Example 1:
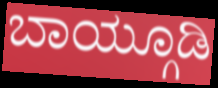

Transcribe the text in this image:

ಬಾಯ್ಗೂಡಿ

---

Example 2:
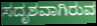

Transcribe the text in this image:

ಸದೃಶವಾಗಿರುವ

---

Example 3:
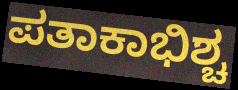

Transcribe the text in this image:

ಪತಾಕಾಭಿಶ್ಚ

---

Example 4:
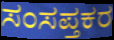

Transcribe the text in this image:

ಸಂಸಪ್ತಕರ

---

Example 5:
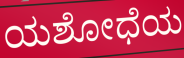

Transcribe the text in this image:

ಯಶೋಧೆಯ